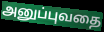
அனுப்புவதை